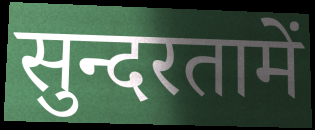
सुन्दरतामें